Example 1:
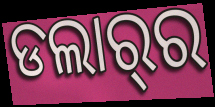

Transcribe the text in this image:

ଡଲାର୍‌ର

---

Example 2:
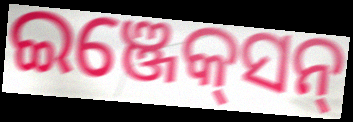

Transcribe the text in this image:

ଇଞ୍ଜେକ୍‍ସନ୍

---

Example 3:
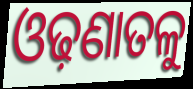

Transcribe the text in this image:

ଓଢ଼ଣାତଳୁ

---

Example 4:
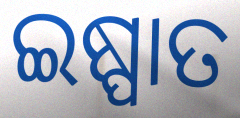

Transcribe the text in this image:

ଇଷ୍ପାତ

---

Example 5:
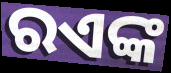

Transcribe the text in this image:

ରଏଙ୍କ